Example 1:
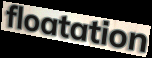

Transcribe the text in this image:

floatation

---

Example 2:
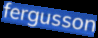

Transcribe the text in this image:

fergusson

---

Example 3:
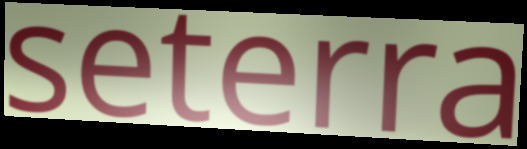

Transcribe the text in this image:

seterra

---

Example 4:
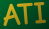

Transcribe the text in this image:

ATI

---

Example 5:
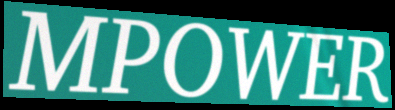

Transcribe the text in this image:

MPOWER